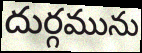
దుర్గమును